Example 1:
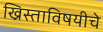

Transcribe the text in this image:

ख्रिस्ताविषयीचे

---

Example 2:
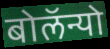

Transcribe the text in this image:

बोलॅन्यो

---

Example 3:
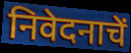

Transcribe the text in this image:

निवेदनाचें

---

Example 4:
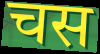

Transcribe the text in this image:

चस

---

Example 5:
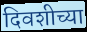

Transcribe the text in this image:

दिवशीच्या